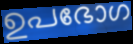
ഉപഭോഗ